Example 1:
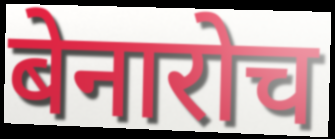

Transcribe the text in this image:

बेनारोच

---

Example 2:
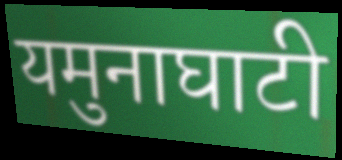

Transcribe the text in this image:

यमुनाघाटी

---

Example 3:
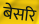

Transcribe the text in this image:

बेसरि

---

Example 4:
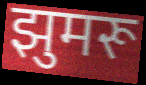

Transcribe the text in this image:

झुमरू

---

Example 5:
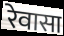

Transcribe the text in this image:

रेवासा